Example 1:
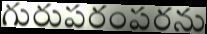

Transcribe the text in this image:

గురుపరంపరను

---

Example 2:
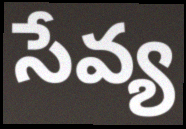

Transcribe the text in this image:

సేవ్య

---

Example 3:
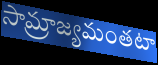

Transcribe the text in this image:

సామ్రాజ్యమంతటా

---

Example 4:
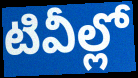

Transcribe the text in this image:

టివీల్లో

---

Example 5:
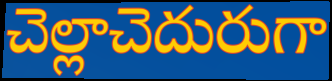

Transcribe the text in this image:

చెల్లాచెదురుగా